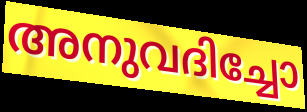
അനുവദിച്ചോ